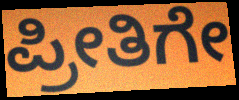
ಪ್ರೀತಿಗೇ